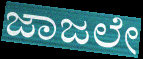
ಜಾಜಲೇ